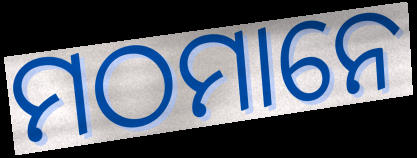
ମଠମାନେ